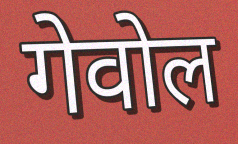
गेवोल